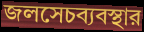
জলসেচব্যবস্থার